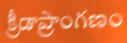
క్రీడాప్రాంగణం